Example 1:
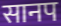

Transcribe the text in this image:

सानप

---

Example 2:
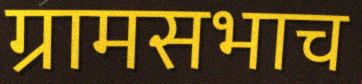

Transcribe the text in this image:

ग्रामसभाच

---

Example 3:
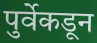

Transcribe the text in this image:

पुर्वेकडून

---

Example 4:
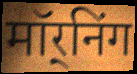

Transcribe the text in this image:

मॉर्निंग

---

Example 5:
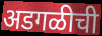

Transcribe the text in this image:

अडगळीची